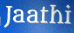
Jaathi